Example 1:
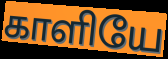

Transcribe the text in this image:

காளியே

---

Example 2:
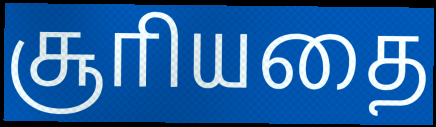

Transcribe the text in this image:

சூரியதை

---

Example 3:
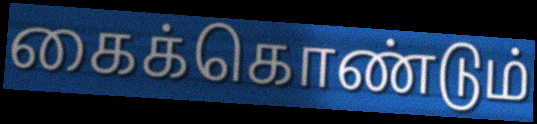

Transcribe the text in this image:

கைக்கொண்டும்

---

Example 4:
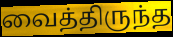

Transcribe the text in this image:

வைத்திருந்த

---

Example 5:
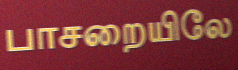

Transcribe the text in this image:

பாசறையிலே